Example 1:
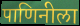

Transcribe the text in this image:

पाणिनीला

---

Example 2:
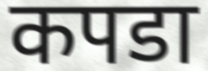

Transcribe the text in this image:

कपडा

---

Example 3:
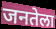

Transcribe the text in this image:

जनतेला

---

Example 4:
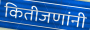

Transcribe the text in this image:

कितीजणांनी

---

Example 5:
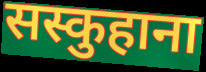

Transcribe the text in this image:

सस्कुहाना